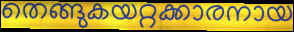
തെങ്ങുകയറ്റക്കാരനായ